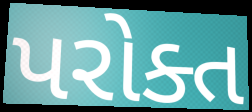
પરોક્ત